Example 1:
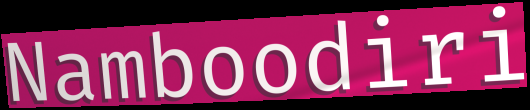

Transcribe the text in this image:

Namboodiri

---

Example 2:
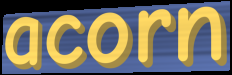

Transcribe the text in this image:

acorn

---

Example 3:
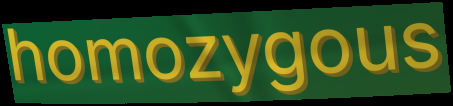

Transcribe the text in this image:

homozygous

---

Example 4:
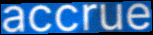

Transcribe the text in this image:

accrue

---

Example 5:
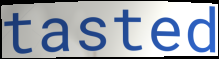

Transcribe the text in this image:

tasted